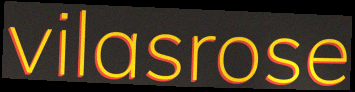
vilasrose